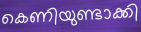
കെണിയുണ്ടാക്കി